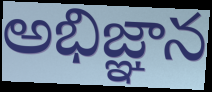
అభిజ్ఞాన